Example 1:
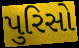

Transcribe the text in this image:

પુરિસો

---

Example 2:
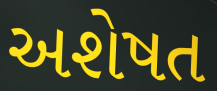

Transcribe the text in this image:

અશેષત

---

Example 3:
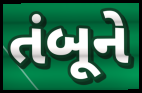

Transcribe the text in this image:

તંબૂને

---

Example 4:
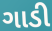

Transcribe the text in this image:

ગાડી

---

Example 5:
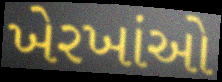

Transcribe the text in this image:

ખેરખાંઓ